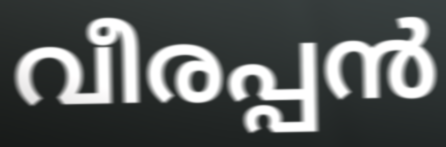
വീരപ്പൻ